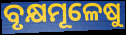
ବୃକ୍ଷମୂଳେଷୁ